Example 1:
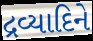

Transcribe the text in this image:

દ્રવ્યાદિને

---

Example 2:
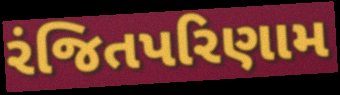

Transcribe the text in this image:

રંજિતપરિણામ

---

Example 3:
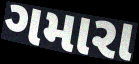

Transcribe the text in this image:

ગમારા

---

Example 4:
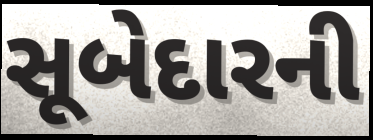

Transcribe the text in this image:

સૂબેદારની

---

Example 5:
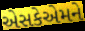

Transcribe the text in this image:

એસકેએમને